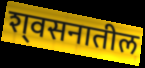
श्वसनातील